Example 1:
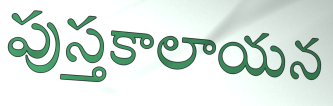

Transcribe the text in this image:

పుస్తకాలాయన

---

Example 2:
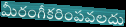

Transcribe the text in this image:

మీరంగీకరింపవలదు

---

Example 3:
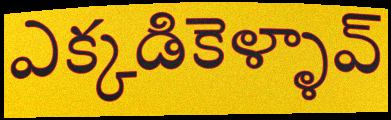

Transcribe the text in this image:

ఎక్కడికెళ్ళావ్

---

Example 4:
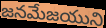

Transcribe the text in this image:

జనమేజయుని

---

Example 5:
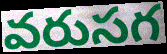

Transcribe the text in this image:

వరుసగ